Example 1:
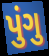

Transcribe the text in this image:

પુંગુ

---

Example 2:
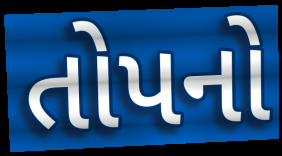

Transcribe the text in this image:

તોપનો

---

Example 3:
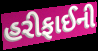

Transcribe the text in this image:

હરીફાઈની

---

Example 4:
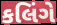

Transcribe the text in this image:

કલિંગે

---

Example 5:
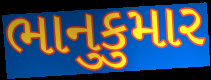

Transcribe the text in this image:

ભાનુકુમાર